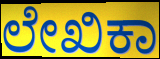
ಲೇಖಿಕಾ